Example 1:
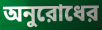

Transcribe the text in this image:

অনুরোধের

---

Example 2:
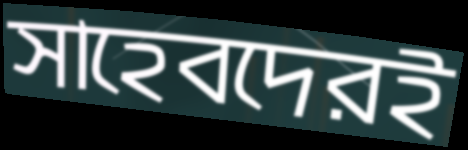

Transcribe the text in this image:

সাহেবদেরই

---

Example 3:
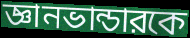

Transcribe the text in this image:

জ্ঞানভান্ডারকে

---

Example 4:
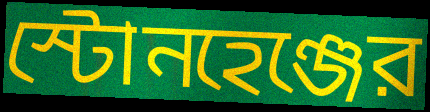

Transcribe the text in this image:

স্টোনহেঞ্জের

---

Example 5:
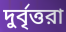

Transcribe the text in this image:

দুর্বৃত্তরা